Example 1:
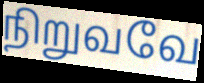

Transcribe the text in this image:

நிறுவவே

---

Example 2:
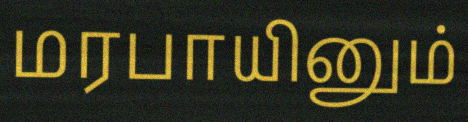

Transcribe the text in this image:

மரபாயினும்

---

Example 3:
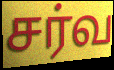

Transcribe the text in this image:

சர்வ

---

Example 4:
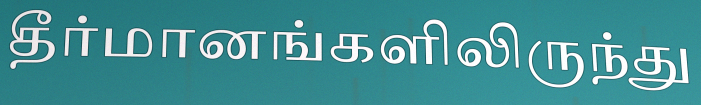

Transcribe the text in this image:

தீர்மானங்களிலிருந்து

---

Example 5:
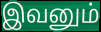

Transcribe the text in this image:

இவனும்